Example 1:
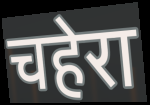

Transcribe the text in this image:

चहेरा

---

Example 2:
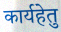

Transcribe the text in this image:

कार्यहेतु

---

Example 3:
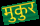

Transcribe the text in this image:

मुकुर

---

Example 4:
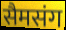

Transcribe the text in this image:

सैमसंग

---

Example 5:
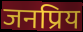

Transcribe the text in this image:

जनप्रिय